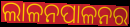
ଲାଳନପାଳନର